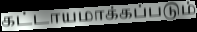
கட்டாயமாக்கப்படும்